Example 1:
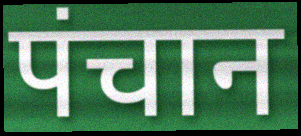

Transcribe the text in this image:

पंचान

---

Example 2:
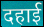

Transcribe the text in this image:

दहाई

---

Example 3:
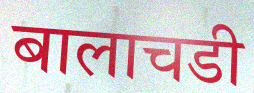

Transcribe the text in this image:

बालाचडी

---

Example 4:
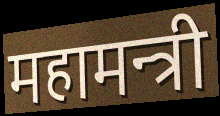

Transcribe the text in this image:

महामन्त्री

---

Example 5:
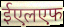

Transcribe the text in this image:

ईएलएफ